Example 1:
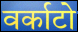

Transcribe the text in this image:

वर्काटो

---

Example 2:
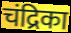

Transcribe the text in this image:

चंद्रिका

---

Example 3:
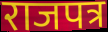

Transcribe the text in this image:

राजपत्र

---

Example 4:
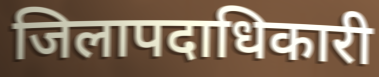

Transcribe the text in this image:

जिलापदाधिकारी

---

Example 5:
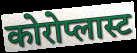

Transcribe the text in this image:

कोरोप्लास्ट